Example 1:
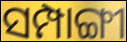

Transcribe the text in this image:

ସମ୍ପାଙ୍ଗୀ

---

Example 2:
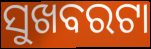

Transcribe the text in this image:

ସୁଖବରଟା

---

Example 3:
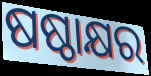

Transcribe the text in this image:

ଷଷ୍ଠାକ୍ଷର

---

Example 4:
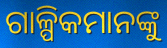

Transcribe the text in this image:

ଗାଳ୍ପିକମାନଙ୍କୁ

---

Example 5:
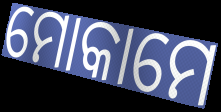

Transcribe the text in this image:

ମୋକାମେ